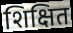
शिक्षित